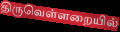
திருவெள்ளறையில்